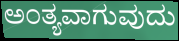
ಅಂತ್ಯವಾಗುವುದು